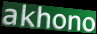
akhono